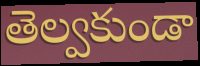
తెల్వకుండా